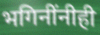
भगिनींनीही